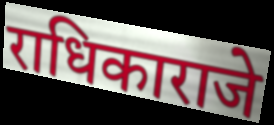
राधिकाराजे